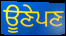
ਊਣੇਪਣ